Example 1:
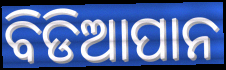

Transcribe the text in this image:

ବିଡିଆପାନ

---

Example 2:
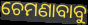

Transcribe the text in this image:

ଚେମଣାବାବୁ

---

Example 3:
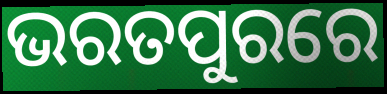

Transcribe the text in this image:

ଭରତପୁରରେ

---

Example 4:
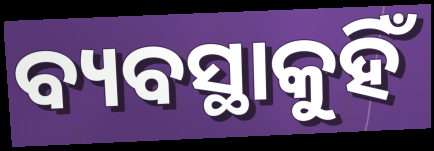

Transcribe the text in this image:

ବ୍ୟବସ୍ଥାକୁହିଁ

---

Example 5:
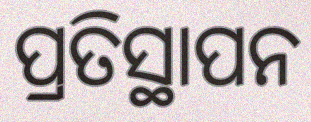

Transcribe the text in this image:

ପ୍ରତିସ୍ଥାପନ